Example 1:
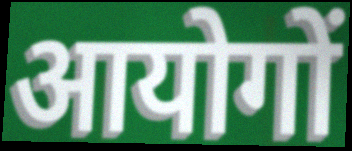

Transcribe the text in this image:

आयोगों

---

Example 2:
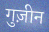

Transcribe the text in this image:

गुज़ीन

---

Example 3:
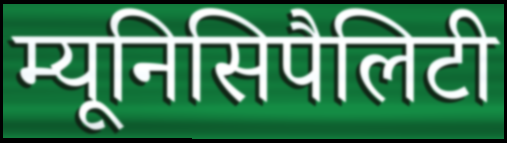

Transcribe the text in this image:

म्यूनिसिपैलिटी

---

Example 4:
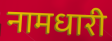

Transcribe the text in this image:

नामधारी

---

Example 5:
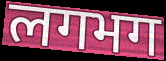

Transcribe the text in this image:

लगभग